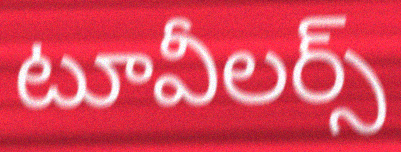
టూవీలర్స్